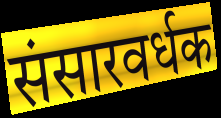
संसारवर्धक